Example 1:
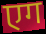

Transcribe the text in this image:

एग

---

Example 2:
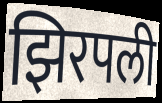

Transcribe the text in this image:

झिरपली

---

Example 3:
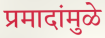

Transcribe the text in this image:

प्रमादांमुळे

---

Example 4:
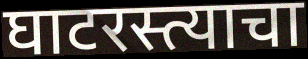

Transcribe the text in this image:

घाटरस्त्याचा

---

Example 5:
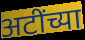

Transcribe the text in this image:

अटींच्या